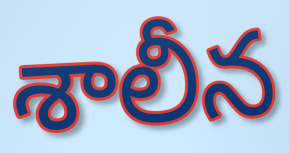
శాలీన